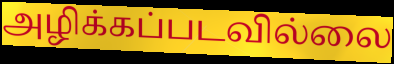
அழிக்கப்படவில்லை